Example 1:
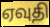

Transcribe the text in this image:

ஏவுதி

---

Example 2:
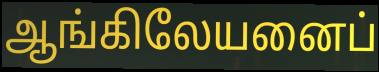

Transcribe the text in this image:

ஆங்கிலேயனைப்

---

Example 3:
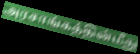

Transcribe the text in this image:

அரசாங்கத்தின்மீது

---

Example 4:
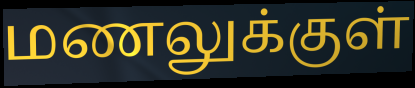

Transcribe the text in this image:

மணலுக்குள்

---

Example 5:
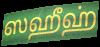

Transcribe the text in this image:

ஸஹீஹ்